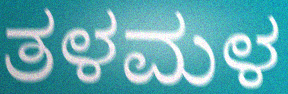
ತಳಮಳ